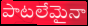
పాటలేమైనా